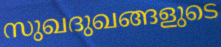
സുഖദുഖങ്ങളുടെ